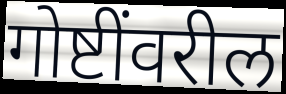
गोष्टींवरील